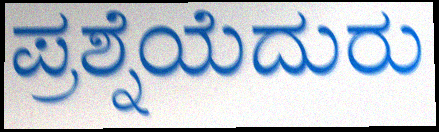
ಪ್ರಶ್ನೆಯೆದುರು